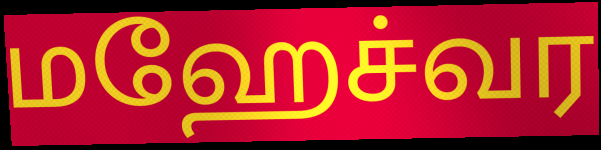
மஹேச்வர